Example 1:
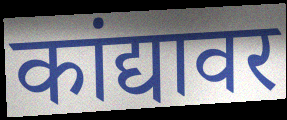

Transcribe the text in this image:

कांद्यावर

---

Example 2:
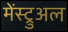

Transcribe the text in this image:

मेंस्ट्रुअल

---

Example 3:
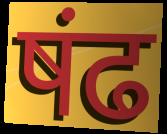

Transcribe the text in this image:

षंढ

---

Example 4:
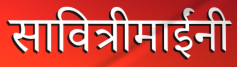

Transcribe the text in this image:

सावित्रीमाईंनी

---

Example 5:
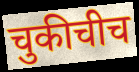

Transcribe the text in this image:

चुकीचीच